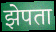
झेपता